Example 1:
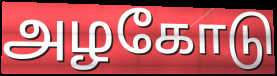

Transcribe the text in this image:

அழகோடு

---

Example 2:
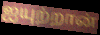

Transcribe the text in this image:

ஐயுற்றான்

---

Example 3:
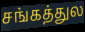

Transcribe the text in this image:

சங்கத்துல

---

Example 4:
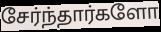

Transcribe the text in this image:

சேர்ந்தார்களோ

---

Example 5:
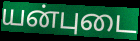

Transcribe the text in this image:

யன்புடை